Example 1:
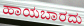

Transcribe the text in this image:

ಹಾಯಬಾರದು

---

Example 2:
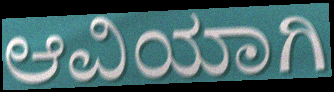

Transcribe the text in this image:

ಆವಿಯಾಗಿ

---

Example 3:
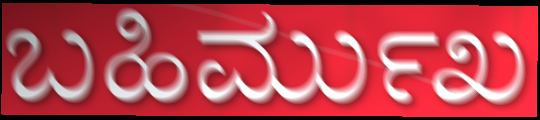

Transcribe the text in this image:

ಬಹಿರ್ಮುಖ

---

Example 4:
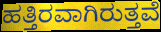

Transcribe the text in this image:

ಹತ್ತಿರವಾಗಿರುತ್ತವೆ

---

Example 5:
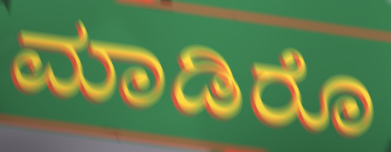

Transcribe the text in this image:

ಮಾಡಿರೊ